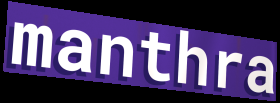
manthra